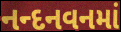
નન્દનવનમાં